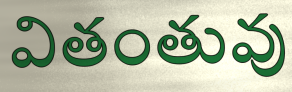
వితంతువు